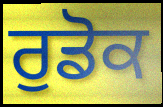
ਰੁਡੋਕ